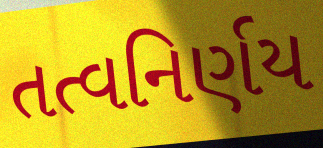
તત્વનિર્ણય